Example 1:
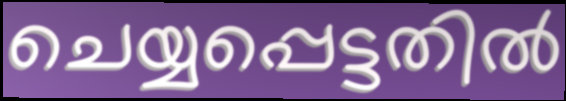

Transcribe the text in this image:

ചെയ്യപ്പെട്ടതിൽ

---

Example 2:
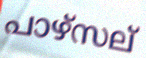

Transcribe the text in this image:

പാഴ്സല്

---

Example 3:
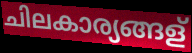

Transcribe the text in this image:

ചിലകാര്യങ്ങള്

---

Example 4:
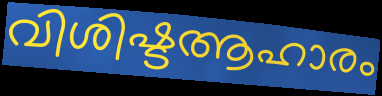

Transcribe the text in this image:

വിശിഷ്ടആഹാരം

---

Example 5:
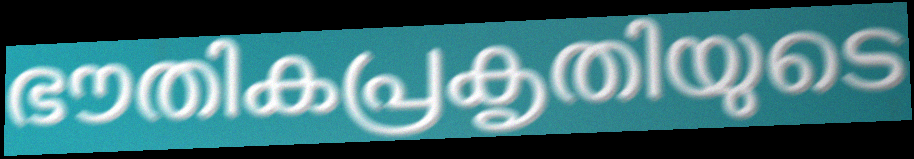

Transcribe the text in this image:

ഭൗതികപ്രകൃതിയുടെ